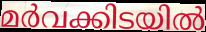
മർവക്കിടയിൽ